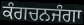
ਕੰਗਚਨਜੰਗਾ